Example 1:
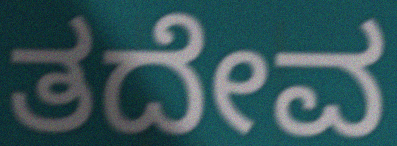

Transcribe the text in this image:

ತದೇವ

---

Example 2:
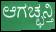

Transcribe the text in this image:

ಆಗಚ್ಛನ್ತಿ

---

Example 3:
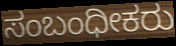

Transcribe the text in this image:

ಸಂಬಂಧೀಕರು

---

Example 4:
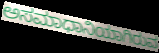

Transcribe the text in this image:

ಅಸಮಾಧಾನಿಯಾಗಿರುವ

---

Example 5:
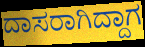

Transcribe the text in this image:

ದಾಸರಾಗಿದ್ದಾಗ